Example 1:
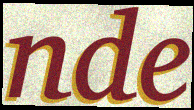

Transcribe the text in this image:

nde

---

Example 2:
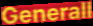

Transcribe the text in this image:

Generall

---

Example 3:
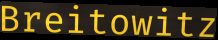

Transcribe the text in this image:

Breitowitz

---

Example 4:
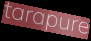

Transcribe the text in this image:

tarapure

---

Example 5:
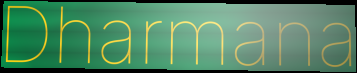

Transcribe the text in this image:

Dharmana